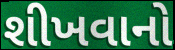
શીખવાનો